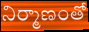
నిర్మాణంతో